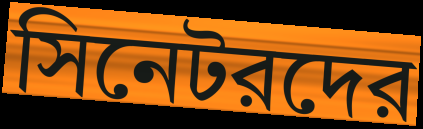
সিনেটরদের